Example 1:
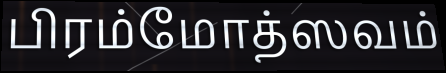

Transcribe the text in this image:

பிரம்மோத்ஸவம்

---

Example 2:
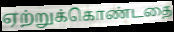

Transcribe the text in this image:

ஏற்றுக்கொண்டதை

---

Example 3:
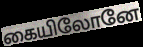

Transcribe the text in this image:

கையிலோனே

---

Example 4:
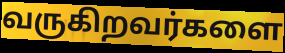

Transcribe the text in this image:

வருகிறவர்களை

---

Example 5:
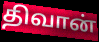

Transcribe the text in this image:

திவான்